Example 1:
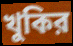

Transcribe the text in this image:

খুকির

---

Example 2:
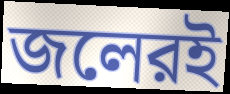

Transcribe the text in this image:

জলেরই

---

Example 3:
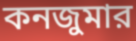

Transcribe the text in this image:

কনজুমার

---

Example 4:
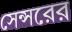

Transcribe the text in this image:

সেন্সরের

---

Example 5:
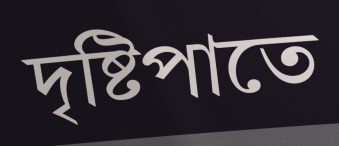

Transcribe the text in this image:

দৃষ্টিপাতে